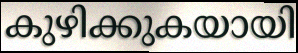
കുഴിക്കുകയായി